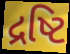
દ્રષ્ટિ